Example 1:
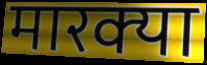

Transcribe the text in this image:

मारक्या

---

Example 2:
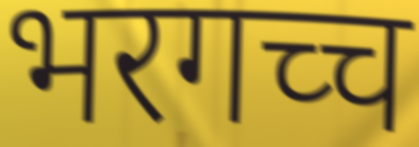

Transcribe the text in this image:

भरगच्च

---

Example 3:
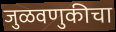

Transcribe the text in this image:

जुळवणुकीचा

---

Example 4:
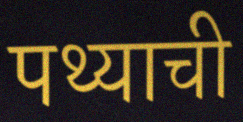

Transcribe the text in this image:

पथ्याची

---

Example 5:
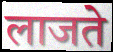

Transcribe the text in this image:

लाजते